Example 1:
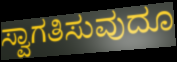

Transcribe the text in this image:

ಸ್ವಾಗತಿಸುವುದೂ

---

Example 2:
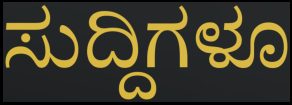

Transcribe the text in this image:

ಸುದ್ದಿಗಳೂ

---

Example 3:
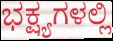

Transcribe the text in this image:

ಭಕ್ಷ್ಯಗಳಲ್ಲಿ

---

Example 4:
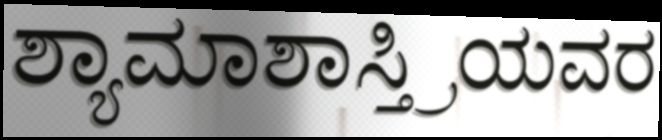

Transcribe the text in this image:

ಶ್ಯಾಮಾಶಾಸ್ತ್ರಿಯವರ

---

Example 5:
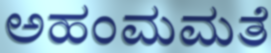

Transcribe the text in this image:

ಅಹಂಮಮತೆ